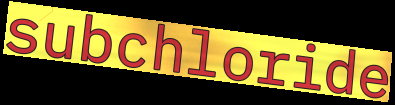
subchloride